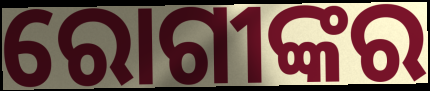
ରୋଗୀଙ୍କର